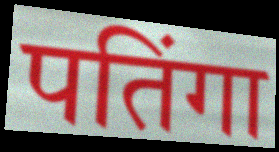
पतिंगा